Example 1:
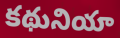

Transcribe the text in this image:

కథునియా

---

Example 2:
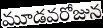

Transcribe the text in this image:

మూడవరోజున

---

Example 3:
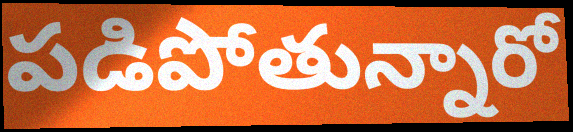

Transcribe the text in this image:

పడిపోతున్నారో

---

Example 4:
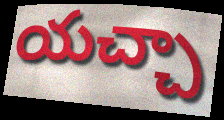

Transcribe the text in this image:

యచ్చా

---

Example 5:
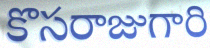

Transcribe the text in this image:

కొసరాజుగారి